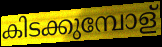
കിടക്കുമ്പോള്